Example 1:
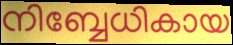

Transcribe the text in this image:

നിബ്ബേധികായ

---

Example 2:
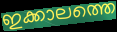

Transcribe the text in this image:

ഇക്കാലത്തെ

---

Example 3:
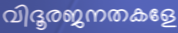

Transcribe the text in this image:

വിദൂരജനതകളേ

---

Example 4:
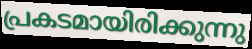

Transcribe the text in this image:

പ്രകടമായിരിക്കുന്നു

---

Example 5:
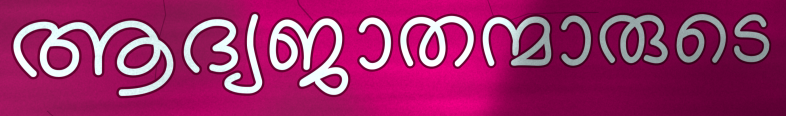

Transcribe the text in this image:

ആദ്യജാതന്മാരുടെ